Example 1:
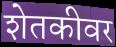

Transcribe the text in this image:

शेतकीवर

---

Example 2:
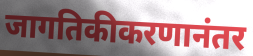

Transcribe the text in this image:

जागतिकीकरणानंतर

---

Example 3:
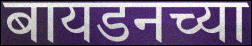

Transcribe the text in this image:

बायडनच्या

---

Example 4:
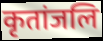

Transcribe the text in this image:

कृतांजलि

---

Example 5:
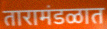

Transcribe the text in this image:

तारामंडळात